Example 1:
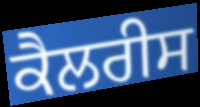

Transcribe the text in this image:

ਕੈਲਰੀਸ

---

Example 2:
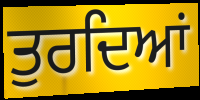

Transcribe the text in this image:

ਤੁਰਦਿਆਂ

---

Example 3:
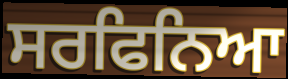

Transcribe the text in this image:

ਸਰਫਿਨਿਆ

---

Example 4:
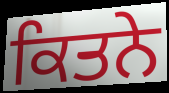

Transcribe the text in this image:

ਕਿਤਨੇ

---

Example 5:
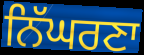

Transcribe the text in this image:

ਨਿੱਘਰਣਾ